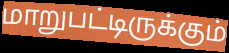
மாறுபட்டிருக்கும்